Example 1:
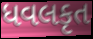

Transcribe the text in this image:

ધવલકૃત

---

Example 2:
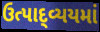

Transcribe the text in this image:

ઉત્પાદ્વ્યયમાં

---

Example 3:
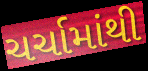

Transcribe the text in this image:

ચર્ચામાંથી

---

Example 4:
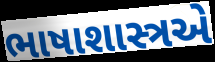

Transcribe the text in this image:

ભાષાશાસ્ત્રએ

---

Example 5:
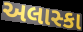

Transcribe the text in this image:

અલાસ્કા